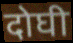
दोघी